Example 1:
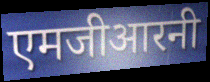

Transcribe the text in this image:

एमजीआरनी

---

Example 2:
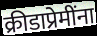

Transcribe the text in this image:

क्रीडाप्रेमींना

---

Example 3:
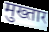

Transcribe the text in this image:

मुख्तार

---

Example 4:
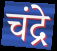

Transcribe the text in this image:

चंद्रे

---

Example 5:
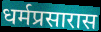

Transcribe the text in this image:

धर्मप्रसारास